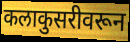
कलाकुसरीवरून